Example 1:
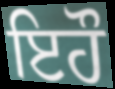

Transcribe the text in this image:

ਇਹੌ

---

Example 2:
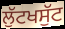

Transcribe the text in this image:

ਲੁੱਟਖਸੁੱਟ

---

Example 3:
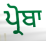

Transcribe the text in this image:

ਪ੍ਰੋਬਾ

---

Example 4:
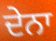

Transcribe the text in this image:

ਦੇਨਾ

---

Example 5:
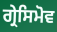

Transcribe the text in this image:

ਗ੍ਰੇਸਿਮੋਵ